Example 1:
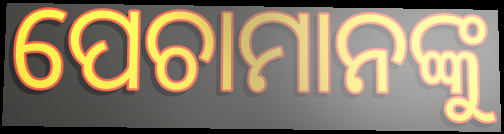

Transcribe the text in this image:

ପେଚାମାନଙ୍କୁ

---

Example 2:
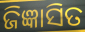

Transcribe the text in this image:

ଜିଜ୍ଞାସିତ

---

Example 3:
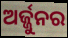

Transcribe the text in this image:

ଅର୍ଜ୍ଜୁନର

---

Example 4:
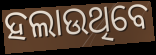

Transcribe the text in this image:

ହଲାଉଥିବେ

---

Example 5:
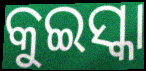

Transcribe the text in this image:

କୁଇସ୍କା